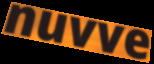
nuvve